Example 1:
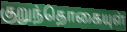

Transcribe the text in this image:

குறுந்தொகையுள்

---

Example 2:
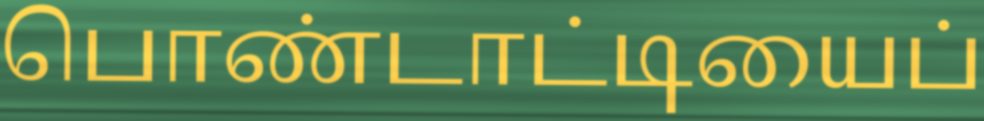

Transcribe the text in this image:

பொண்டாட்டியைப்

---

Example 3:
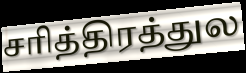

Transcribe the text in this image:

சரித்திரத்துல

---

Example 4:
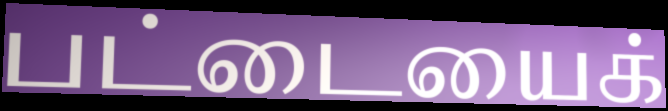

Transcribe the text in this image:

பட்டையைக்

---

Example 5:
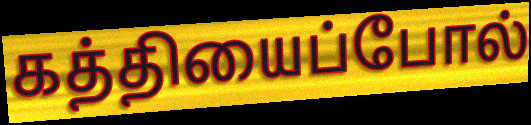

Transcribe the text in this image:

கத்தியைப்போல்